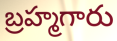
బ్రహ్మగారు